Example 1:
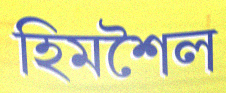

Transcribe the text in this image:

হিমশৈল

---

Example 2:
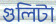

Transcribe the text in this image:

গুলিটা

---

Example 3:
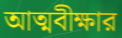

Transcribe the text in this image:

আত্মবীক্ষার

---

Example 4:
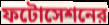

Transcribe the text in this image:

ফটোসেশনের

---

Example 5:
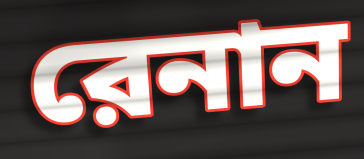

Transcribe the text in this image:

রেনান